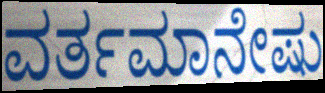
ವರ್ತಮಾನೇಷು